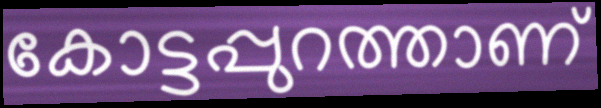
കോട്ടപ്പുറത്താണ്